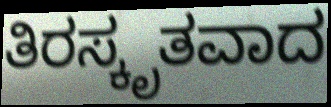
ತಿರಸ್ಕೃತವಾದ